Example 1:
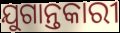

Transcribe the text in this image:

ଯୁଗାନ୍ତକାରୀ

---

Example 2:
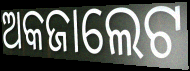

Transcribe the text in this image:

ଅକଜାଲେଟ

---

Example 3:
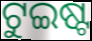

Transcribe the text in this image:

ଟୁଇଷ୍ଟ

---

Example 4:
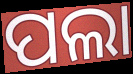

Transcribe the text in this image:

ପଲା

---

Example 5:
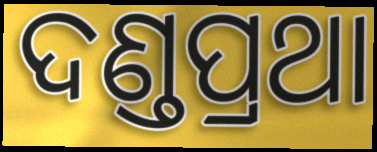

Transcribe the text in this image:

ଦଣ୍ଡପ୍ରଥା